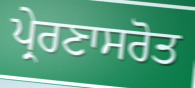
ਪ੍ਰੇਰਣਾਸਰੋਤ